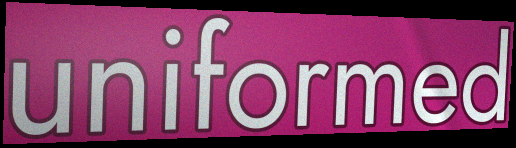
uniformed